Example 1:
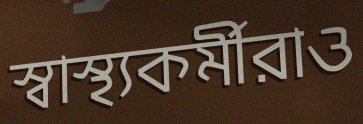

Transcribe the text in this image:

স্বাস্থ্যকর্মীরাও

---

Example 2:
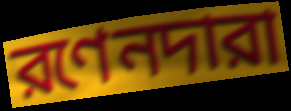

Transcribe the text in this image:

রণেনদারা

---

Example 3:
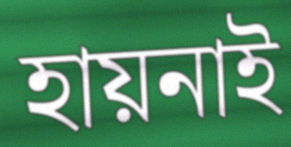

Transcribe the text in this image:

হায়নাই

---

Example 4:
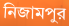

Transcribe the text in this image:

নিজামপুর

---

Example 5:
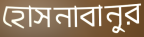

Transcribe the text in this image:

হোসনাবানুর